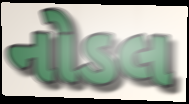
નોડલ